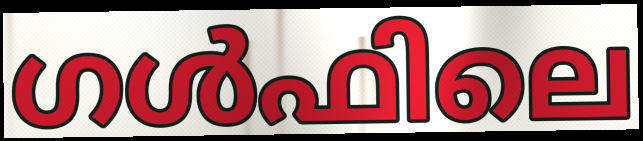
ഗൾഫിലെ